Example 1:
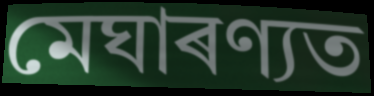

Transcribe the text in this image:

মেঘাৰণ্যত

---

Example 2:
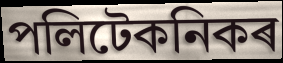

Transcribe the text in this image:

পলিটেকনিকৰ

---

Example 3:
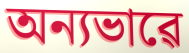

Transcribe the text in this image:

অন্যভাৱে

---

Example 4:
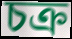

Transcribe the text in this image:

চক্ৰ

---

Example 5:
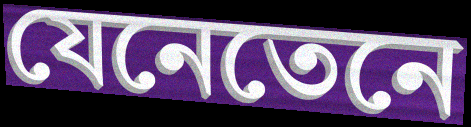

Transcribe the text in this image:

যেনেতেনে